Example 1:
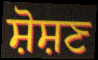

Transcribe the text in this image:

ਸ਼ੋਸ਼ਣ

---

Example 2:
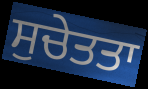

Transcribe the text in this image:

ਸੁਚੇਤਤਾ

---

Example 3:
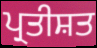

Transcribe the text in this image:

ਪ੍ਰਤੀਸ਼ਤ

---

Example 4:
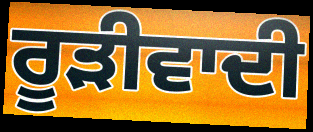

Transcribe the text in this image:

ਰੂੜੀਵਾਦੀ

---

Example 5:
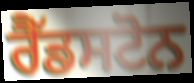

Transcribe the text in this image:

ਰੈੱਡਸਟੋਨ